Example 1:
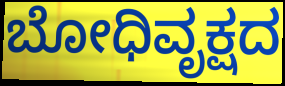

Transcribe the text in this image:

ಬೋಧಿವೃಕ್ಷದ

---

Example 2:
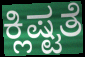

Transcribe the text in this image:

ಕ್ಲಿಷ್ಟತೆ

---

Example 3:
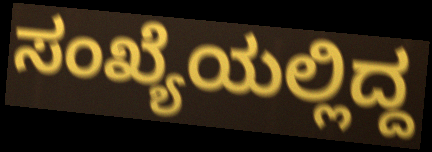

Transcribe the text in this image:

ಸಂಖ್ಯೆಯಲ್ಲಿದ್ದ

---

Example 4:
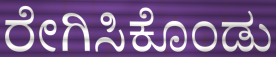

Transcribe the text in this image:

ರೇಗಿಸಿಕೊಂಡು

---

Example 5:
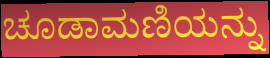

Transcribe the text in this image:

ಚೂಡಾಮಣಿಯನ್ನು